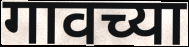
गावच्या